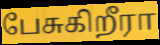
பேசுகிறீரா